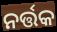
ନର୍ତ୍ତକ